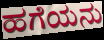
ಹಗೆಯನು